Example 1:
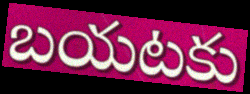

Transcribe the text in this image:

బయటకు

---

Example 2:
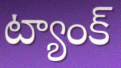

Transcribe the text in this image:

ట్యాంక్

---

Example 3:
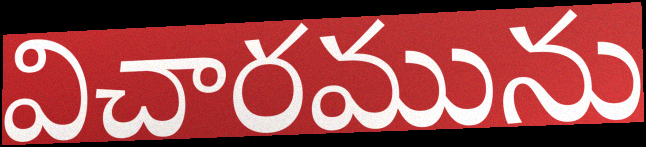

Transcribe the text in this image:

విచారమును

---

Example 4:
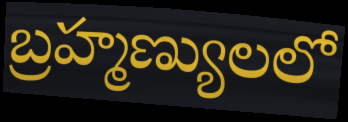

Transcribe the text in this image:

బ్రహ్మణ్యులలో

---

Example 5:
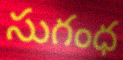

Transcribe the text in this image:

సుగంధ